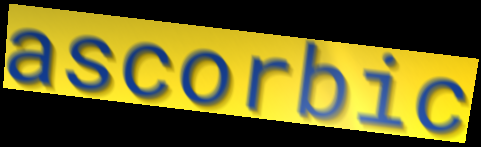
ascorbic